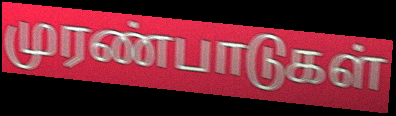
முரண்பாடுகள்